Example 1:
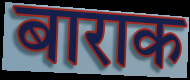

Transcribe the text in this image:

बाराक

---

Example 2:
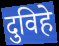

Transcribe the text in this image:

दुविहे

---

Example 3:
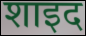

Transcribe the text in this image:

शाइद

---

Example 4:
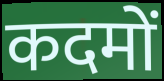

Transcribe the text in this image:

कदमों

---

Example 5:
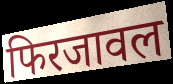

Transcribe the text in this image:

फिरजावल